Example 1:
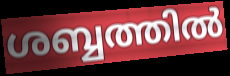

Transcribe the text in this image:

ശബ്ബത്തിൽ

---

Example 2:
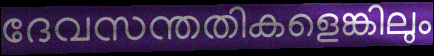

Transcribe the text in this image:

ദേവസന്തതികളെങ്കിലും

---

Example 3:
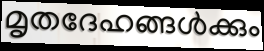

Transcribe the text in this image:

മൃതദേഹങ്ങൾക്കും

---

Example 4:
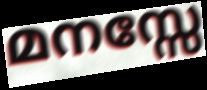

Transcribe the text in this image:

മനസ്സേ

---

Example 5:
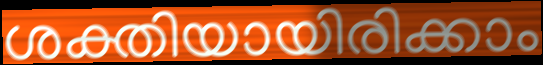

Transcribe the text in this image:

ശക്തിയായിരിക്കാം